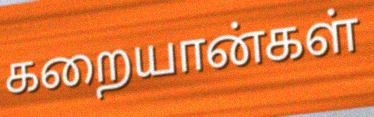
கறையான்கள்